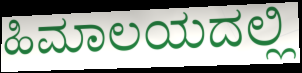
ಹಿಮಾಲಯದಲ್ಲಿ